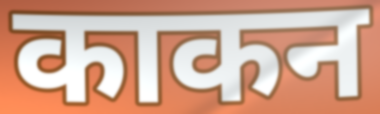
काकन